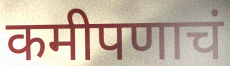
कमीपणाचं